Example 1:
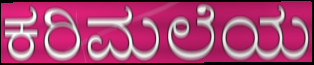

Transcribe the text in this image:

ಕರಿಮಲೆಯ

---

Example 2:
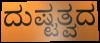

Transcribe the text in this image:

ದುಷ್ಟತ್ವದ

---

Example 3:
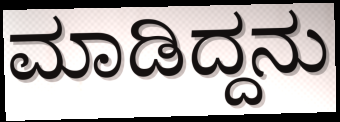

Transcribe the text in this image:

ಮಾಡಿದ್ದನು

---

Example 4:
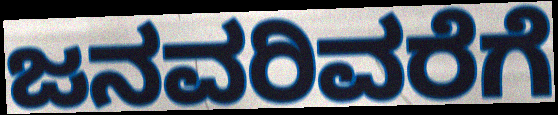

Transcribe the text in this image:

ಜನವರಿವರೆಗೆ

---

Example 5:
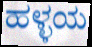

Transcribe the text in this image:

ಹಳ್ಳಯ